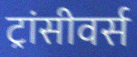
ट्रांसीवर्स